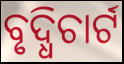
ବୃଦ୍ଧିଚାର୍ଟ